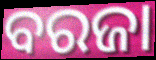
ବରଜା